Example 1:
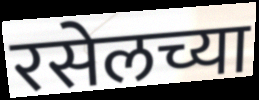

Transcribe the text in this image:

रसेलच्या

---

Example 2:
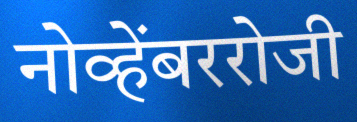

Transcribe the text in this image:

नोव्हेंबररोजी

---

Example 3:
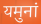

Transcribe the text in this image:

यमुनां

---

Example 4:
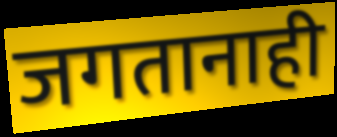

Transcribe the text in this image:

जगतानाही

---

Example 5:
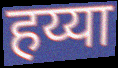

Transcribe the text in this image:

हय्या